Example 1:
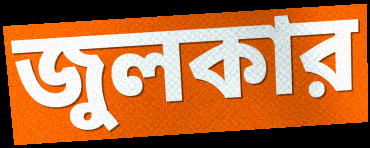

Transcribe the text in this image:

জুলকার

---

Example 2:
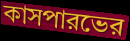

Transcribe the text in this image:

কাসপারভের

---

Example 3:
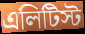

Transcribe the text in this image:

এলিটিস্ট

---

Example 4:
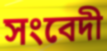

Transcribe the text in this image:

সংবেদী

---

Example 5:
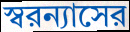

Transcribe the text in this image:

স্বরন্যাসের